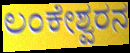
ಲಂಕೇಶ್ವರನ